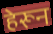
हेरून